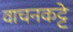
वाचनकट्टे